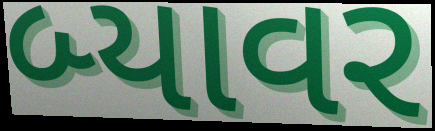
બ્યાવર